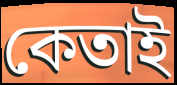
কেতাই